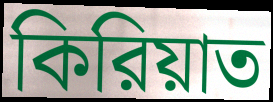
কিরিয়াত